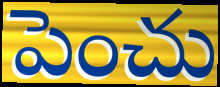
పెంచు